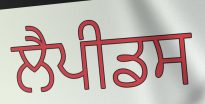
ਲੈਪੀਡਸ